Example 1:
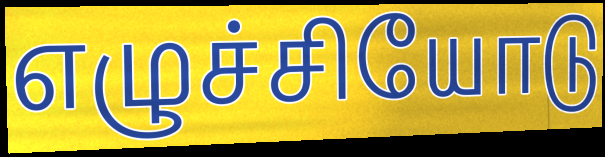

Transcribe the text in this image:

எழுச்சியோடு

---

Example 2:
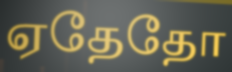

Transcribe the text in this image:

ஏதேதோ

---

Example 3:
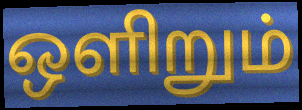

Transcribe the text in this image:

ஒளிறும்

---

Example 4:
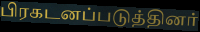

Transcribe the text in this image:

பிரகடனப்படுத்தினர்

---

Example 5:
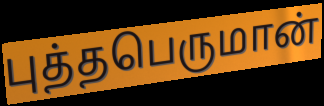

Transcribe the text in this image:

புத்தபெருமான்